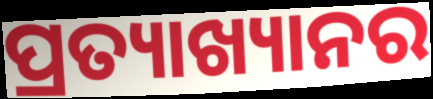
ପ୍ରତ୍ୟାଖ୍ୟାନର